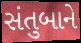
સંતુબાને